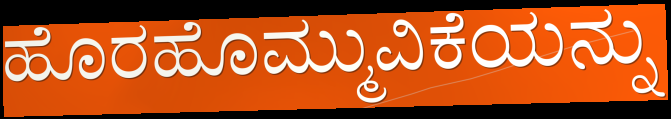
ಹೊರಹೊಮ್ಮುವಿಕೆಯನ್ನು